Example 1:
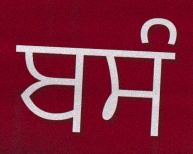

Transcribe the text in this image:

ਬਸੰ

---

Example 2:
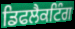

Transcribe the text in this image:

ਡਿਫਲੈਕਟਿੰਗ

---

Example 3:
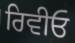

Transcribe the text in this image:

ਰਿਵੀਓ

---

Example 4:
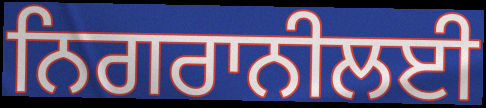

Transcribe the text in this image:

ਨਿਗਰਾਨੀਲਈ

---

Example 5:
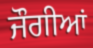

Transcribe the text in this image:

ਜੌਗੀਆਂ